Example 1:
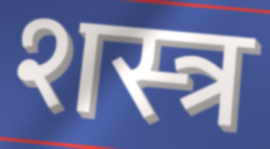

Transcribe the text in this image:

शस्त्र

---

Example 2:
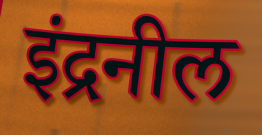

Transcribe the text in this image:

इंद्रनील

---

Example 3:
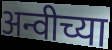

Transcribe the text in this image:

अन्वीच्या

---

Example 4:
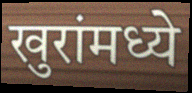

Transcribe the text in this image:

खुरांमध्ये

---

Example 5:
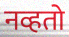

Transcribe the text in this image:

नव्हतो